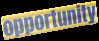
opportunity